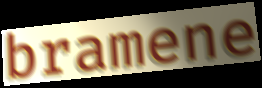
bramene